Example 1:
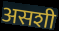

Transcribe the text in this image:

असशी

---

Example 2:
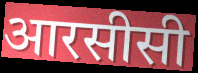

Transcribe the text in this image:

आरसीसी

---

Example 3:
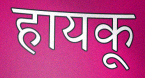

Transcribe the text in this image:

हायकू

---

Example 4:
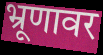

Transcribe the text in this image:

भ्रूणावर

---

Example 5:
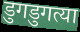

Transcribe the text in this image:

डुगडुगत्या